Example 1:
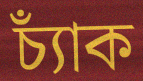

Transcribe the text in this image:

চ্যাঁক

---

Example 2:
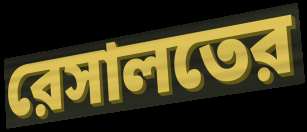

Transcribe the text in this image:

রেসালতের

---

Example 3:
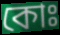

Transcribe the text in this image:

কোঃ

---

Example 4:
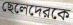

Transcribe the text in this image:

ছেলেদেরকে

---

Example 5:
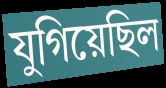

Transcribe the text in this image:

যুগিয়েছিল